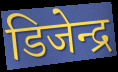
डिजेन्द्र